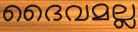
ദൈവമല്ല